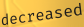
decreased